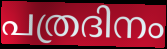
പത്രദിനം